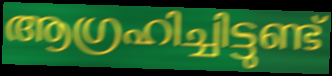
ആഗ്രഹിച്ചിട്ടുണ്ട്